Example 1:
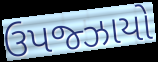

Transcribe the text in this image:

ઉપજ્ઝાયો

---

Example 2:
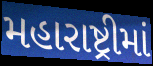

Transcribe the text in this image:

મહારાષ્ટ્રીમાં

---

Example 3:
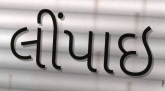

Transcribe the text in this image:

લીંપાઇ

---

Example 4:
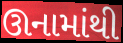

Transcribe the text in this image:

ઊનામાંથી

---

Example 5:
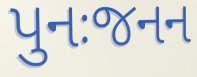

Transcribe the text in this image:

પુનઃજનન